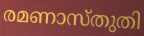
രമണാസ്തുതി